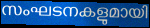
സംഘടനകളുമായി